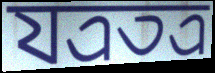
যত্রতত্র